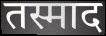
तस्माद